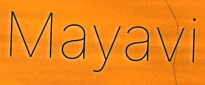
Mayavi